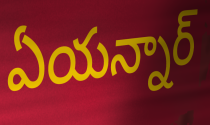
ఏయన్నార్